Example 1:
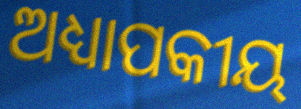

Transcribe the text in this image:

ଅଧ୍ୟାପକୀୟ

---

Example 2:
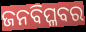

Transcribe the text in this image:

ଜନବିପ୍ଳବର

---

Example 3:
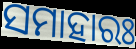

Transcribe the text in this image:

ସମାହାରଃ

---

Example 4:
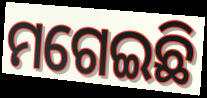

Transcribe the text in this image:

ମଗେଇଛି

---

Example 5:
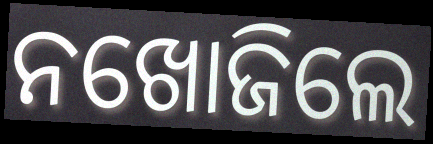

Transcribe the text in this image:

ନଖୋଜିଲେ